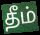
தீம்